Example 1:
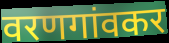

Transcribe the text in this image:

वरणगांवकर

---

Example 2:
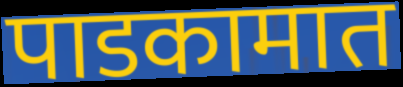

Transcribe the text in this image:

पाडकामात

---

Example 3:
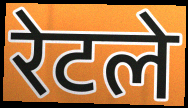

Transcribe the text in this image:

रेटले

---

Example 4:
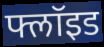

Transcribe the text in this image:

फ्लॉइड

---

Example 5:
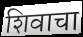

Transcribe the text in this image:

शिवाचा